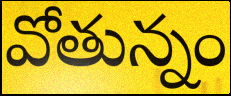
వోతున్నం